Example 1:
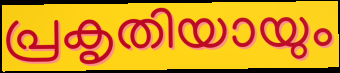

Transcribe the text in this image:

പ്രകൃതിയായും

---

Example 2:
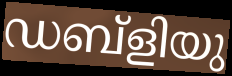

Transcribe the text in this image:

ഡബ്ളിയു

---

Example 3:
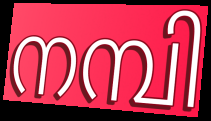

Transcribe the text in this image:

നമ്പി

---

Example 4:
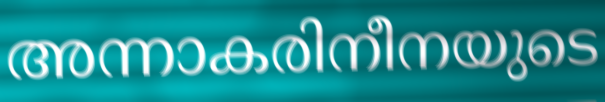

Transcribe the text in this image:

അന്നാകരിനീനയുടെ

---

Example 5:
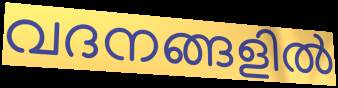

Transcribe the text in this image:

വദനങ്ങളിൽ